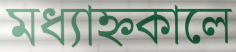
মধ্যাহ্নকালে